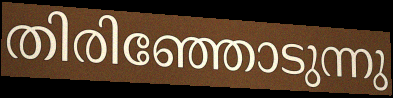
തിരിഞ്ഞോടുന്നു